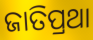
ଜାତିପ୍ରଥା